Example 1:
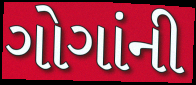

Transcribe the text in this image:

ગોગાંની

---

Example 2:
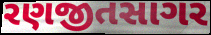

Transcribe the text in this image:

રણજીતસાગર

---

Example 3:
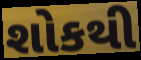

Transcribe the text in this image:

શોકથી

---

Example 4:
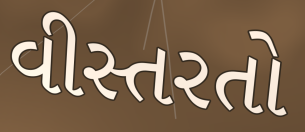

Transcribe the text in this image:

વીસ્તરતો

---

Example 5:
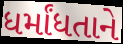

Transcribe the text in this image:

ધર્માંધતાને